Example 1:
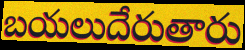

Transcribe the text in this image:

బయలుదేరుతారు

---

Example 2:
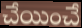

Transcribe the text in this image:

చేయించే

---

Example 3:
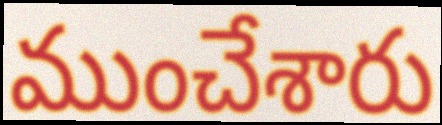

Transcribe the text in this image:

ముంచేశారు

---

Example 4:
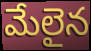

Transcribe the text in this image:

మేలైన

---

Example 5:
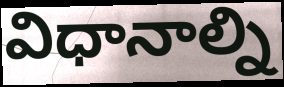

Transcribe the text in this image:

విధానాల్ని